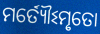
ମର୍ତ୍ୟୌଽମୃତୋ